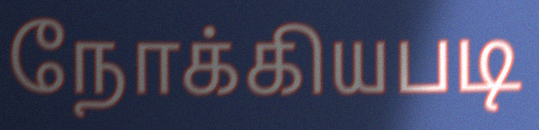
நோக்கியபடி